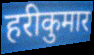
हरीकुमार